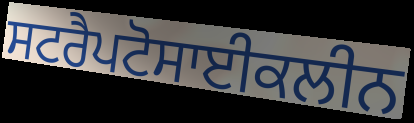
ਸਟਰੈਪਟੋਸਾਈਕਲੀਨ